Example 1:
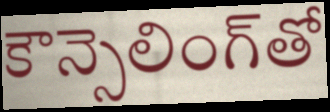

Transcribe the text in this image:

కౌన్సెలింగ్‌తో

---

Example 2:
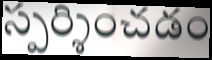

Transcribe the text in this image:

స్పర్శించడం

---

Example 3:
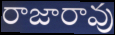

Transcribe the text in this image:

రాజారావు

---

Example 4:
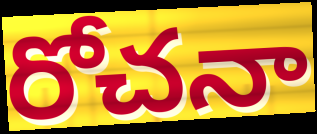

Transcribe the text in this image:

రోచనా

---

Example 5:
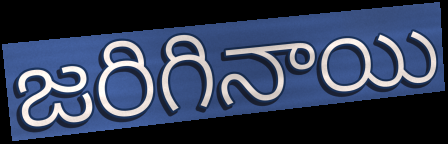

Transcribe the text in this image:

జరిగినాయి